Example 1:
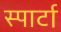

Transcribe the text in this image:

स्पार्टा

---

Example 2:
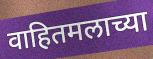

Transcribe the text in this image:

वाहितमलाच्या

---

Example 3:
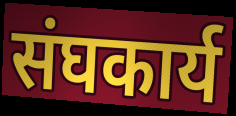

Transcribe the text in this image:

संघकार्य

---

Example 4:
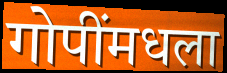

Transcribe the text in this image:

गोपींमधला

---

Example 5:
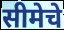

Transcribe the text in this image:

सीमेचे